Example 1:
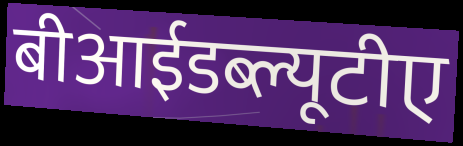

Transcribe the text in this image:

बीआईडब्ल्यूटीए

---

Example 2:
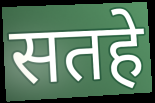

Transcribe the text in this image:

सतहे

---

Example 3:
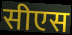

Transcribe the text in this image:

सीएस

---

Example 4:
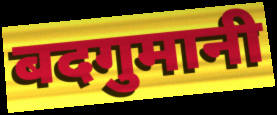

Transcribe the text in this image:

बदगुमानी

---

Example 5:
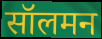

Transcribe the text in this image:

सॉलमन